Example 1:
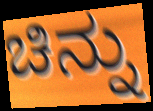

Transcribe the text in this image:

ಚಿನ್ನು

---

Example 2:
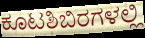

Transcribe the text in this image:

ಕೂಟಶಿಬಿರಗಳಲ್ಲಿ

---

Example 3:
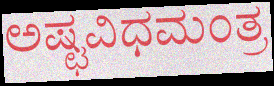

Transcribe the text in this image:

ಅಷ್ಟವಿಧಮಂತ್ರ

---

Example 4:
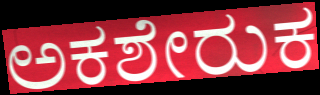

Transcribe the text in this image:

ಅಕಶೇರುಕ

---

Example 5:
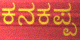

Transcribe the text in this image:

ಕನಕಪ್ಪ